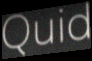
Quid